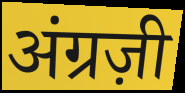
अंग्रज़ी